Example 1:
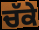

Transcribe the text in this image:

ਚੱਕੇ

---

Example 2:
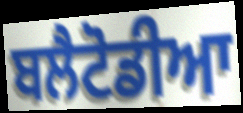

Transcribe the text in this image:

ਬਲੈਟੋਡੀਆ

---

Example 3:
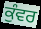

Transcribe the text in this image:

ਕੁੰਵਰ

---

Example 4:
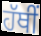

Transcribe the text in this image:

ਹੱਥੀਂ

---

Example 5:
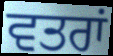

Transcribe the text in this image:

ਵਤਰਾਂ